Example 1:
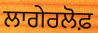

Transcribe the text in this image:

ਲਾਗੇਰਲੋਫ਼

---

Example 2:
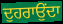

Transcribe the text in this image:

ਦੁਹਰਾਉਂਦਾ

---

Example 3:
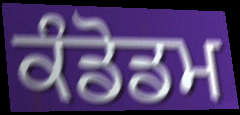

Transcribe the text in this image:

ਕੰਡੋਡਮ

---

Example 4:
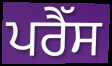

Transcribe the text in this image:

ਪਰੈੱਸ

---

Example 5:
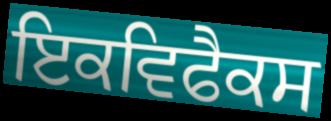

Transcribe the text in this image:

ਇਕਵਿਫੈਕਸ